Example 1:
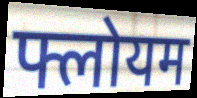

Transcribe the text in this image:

फ्लोयम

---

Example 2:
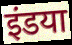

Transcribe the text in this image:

इंडया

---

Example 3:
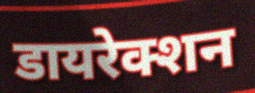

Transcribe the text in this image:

डायरेक्शन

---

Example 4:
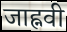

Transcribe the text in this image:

जाह्नवी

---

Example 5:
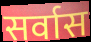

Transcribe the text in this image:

सर्वास